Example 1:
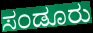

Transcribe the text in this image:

ಸಂಡೂರು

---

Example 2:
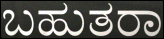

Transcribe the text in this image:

ಬಹುತರಾ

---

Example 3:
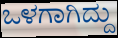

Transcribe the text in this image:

ಒಳಗಾಗಿದ್ದು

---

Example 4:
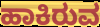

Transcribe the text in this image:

ಹಾಕಿರುವ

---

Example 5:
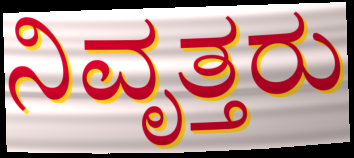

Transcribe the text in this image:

ನಿವೃತ್ತರು